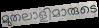
മുതലാളിമാരുടെ